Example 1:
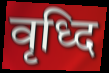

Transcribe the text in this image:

वृध्दि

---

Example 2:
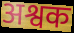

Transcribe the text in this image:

अश्वक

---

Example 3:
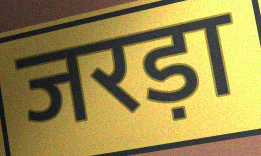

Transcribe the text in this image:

जरड़ा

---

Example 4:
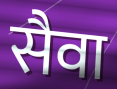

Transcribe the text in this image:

सैवा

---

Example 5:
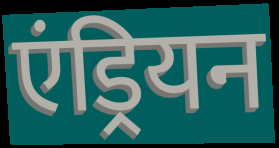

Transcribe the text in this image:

एंड्रियन